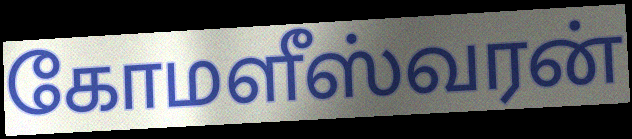
கோமளீஸ்வரன்